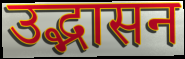
उद्भासन